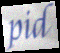
pid